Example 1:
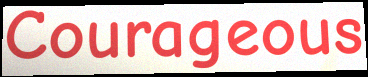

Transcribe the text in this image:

Courageous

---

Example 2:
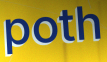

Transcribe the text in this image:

poth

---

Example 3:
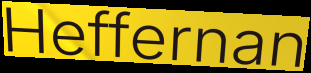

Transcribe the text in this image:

Heffernan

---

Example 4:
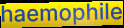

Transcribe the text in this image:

haemophile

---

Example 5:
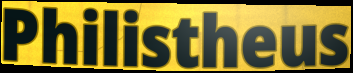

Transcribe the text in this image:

Philistheus